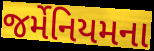
જર્મેનિયમના